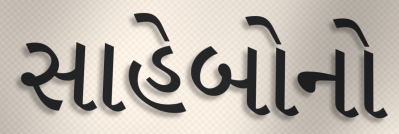
સાહેબોનો